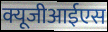
क्यूजीआईएस